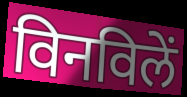
विनविलें